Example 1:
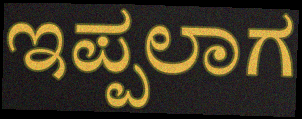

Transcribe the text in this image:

ಇಪ್ಪಲಾಗ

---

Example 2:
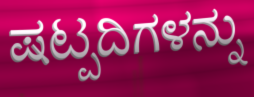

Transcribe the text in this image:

ಷಟ್ಪದಿಗಳನ್ನು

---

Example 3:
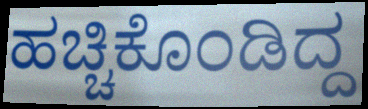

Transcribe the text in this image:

ಹಚ್ಚಿಕೊಂಡಿದ್ದ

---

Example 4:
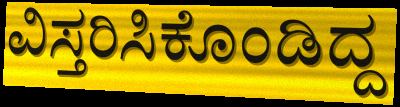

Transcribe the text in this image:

ವಿಸ್ತರಿಸಿಕೊಂಡಿದ್ದ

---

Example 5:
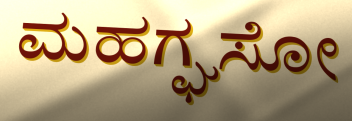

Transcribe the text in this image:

ಮಹಗ್ಘಸೋ